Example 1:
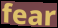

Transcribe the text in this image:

fear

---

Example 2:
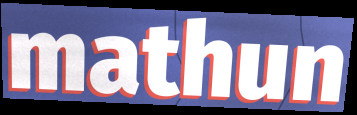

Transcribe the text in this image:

mathun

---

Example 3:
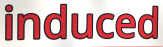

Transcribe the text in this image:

induced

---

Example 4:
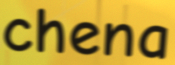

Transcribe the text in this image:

chena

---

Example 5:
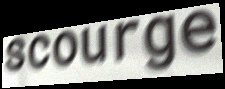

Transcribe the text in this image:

scourge